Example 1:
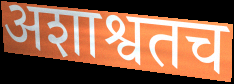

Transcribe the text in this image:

अशाश्वतच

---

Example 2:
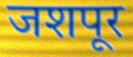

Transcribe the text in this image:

जशपूर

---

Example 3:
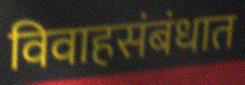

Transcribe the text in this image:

विवाहसंबंधात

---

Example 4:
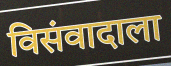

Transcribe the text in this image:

विसंवादाला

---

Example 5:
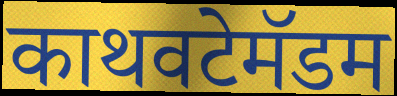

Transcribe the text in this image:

काथवटेमॅडम